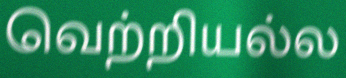
வெற்றியல்ல